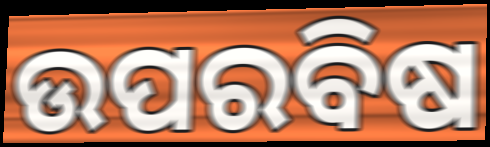
ଉପରବିଷ